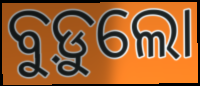
ବୁଡ଼ୁଲୋ